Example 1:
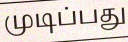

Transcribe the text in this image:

முடிப்பது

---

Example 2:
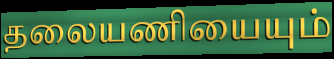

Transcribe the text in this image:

தலையணியையும்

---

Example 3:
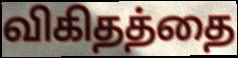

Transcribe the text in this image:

விகிதத்தை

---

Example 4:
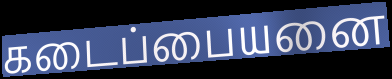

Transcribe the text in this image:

கடைப்பையனை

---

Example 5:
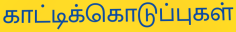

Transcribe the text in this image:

காட்டிக்கொடுப்புகள்